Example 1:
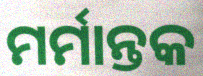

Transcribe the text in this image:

ମର୍ମାନ୍ତକ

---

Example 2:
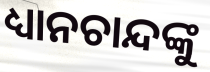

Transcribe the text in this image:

ଧ୍ୟାନଚାନ୍ଦଙ୍କୁ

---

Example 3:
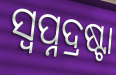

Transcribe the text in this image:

ସ୍ୱପ୍ନଦ୍ରଷ୍ଟା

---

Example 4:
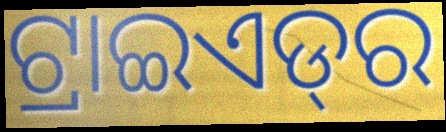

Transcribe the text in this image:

ଟ୍ରାଇଏଡ୍‌ର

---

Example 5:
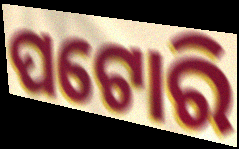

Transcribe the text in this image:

ପଟୋରି